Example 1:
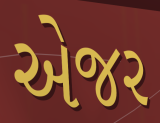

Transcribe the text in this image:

એજર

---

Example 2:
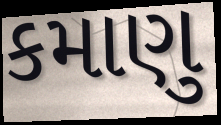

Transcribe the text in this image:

કમાણુ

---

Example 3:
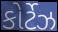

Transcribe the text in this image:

કોર્ટેઝ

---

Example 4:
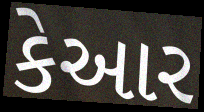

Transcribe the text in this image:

કેઆર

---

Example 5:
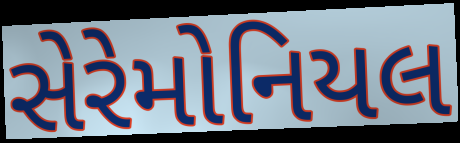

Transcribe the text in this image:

સેરેમોનિયલ